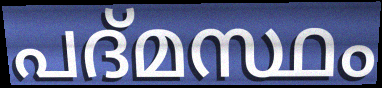
പദ്മസ്ഥം